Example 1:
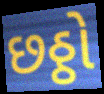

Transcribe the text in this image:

છઠ્ઠો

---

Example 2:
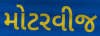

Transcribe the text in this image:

મોટરવીજ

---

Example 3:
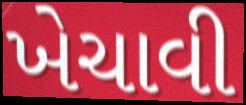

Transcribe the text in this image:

ખેચાવી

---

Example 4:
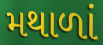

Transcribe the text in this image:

મથાળાં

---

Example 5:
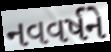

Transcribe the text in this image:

નવવર્ષને